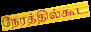
நேரத்தில்கூட